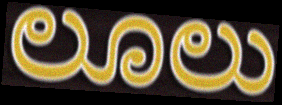
ಲೂಲು